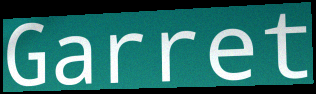
Garret